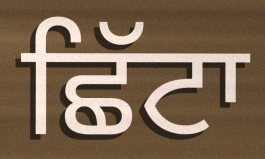
ਛਿੱਟਾ